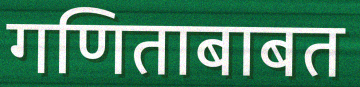
गणिताबाबत